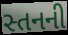
સ્તનની